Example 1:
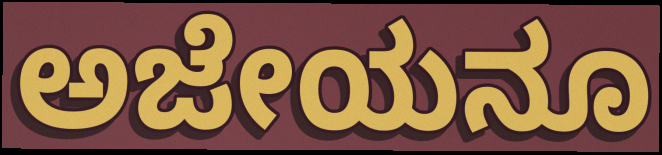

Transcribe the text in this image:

ಅಜೇಯನೂ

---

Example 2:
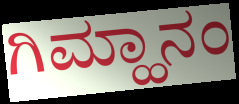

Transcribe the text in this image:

ಗಿಮ್ಹಾನಂ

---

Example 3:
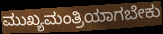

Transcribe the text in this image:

ಮುಖ್ಯಮಂತ್ರಿಯಾಗಬೇಕು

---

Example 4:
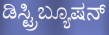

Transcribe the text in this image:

ಡಿಸ್ಟ್ರಿಬ್ಯೂಷನ್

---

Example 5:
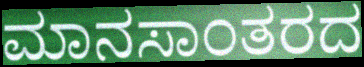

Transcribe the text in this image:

ಮಾನಸಾಂತರದ